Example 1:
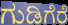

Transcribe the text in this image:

ಗುಡಿಗೆರೆ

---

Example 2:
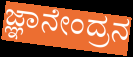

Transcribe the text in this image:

ಜ್ಞಾನೇಂದ್ರನ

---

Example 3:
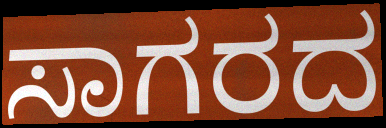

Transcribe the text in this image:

ಸಾಗರದ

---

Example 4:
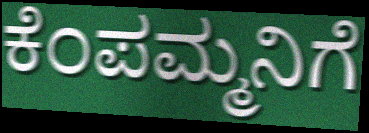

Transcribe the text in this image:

ಕೆಂಪಮ್ಮನಿಗೆ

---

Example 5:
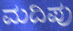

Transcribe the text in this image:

ಮದಿಪು